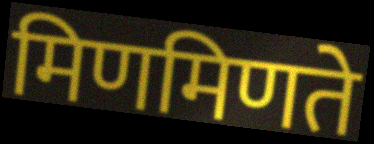
मिणमिणते